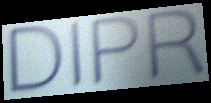
DIPR